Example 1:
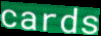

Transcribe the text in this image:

cards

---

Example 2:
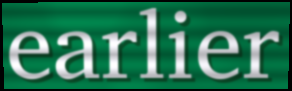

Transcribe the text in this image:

earlier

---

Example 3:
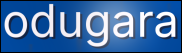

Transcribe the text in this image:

odugara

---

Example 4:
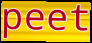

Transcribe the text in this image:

peet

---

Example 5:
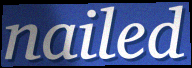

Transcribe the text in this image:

nailed